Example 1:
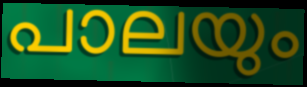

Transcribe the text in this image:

പാലയും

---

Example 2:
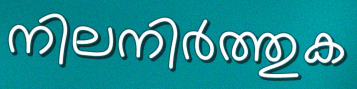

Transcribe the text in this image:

നിലനിർത്തുക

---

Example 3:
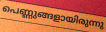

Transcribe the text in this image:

പെണ്ണുങ്ങളായിരുന്നു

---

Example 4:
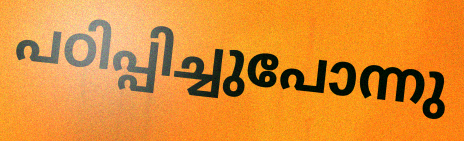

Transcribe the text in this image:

പഠിപ്പിച്ചുപോന്നു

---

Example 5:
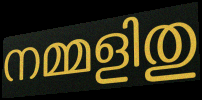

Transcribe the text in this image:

നമ്മളിതു